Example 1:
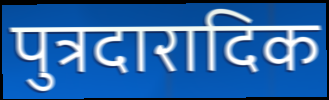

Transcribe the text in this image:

पुत्रदारादिक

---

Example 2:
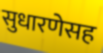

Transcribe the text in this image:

सुधारणेसह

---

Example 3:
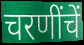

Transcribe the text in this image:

चरणींचें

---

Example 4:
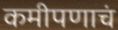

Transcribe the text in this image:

कमीपणाचं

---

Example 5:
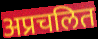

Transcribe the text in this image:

अप्रचलित